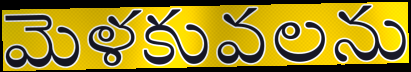
మెళకువలను